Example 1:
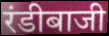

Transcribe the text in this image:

रंडीबाजी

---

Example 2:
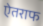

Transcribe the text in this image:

ऐतराफ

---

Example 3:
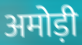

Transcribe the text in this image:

अमोड़ी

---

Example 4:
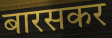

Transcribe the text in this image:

बारसकर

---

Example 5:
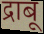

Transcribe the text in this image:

द्राबू